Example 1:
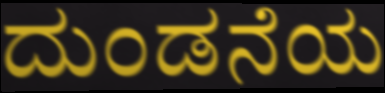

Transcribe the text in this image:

ದುಂಡನೆಯ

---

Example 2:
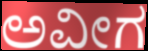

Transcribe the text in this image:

ಅವೀಗ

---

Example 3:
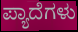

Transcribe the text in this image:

ಪ್ಯಾದೆಗಳು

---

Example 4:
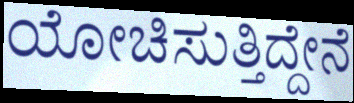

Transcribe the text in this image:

ಯೋಚಿಸುತ್ತಿದ್ದೇನೆ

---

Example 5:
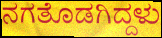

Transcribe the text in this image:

ನಗತೊಡಗಿದ್ದಳು